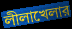
লীলাখেলার